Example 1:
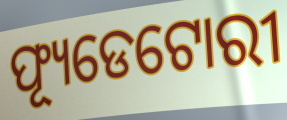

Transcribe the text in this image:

ଫ୍ୟୂଡେଟୋରୀ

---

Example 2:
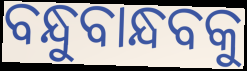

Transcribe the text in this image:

ବନ୍ଧୁବାନ୍ଧବକୁ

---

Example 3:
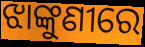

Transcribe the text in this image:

ଝାଙ୍କୁଣୀରେ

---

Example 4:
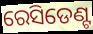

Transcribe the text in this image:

ରେସିଡେଣ୍ଟ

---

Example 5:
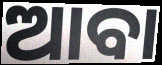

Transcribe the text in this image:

ଆବା